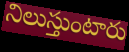
నిలుస్తుంటారు